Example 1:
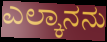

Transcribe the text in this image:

ಎಲ್ಕಾನನು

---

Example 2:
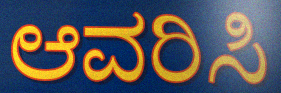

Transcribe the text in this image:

ಆವರಿಸಿ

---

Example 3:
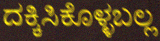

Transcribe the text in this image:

ದಕ್ಕಿಸಿಕೊಳ್ಳಬಲ್ಲ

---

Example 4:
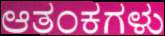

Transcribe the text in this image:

ಆತಂಕಗಳು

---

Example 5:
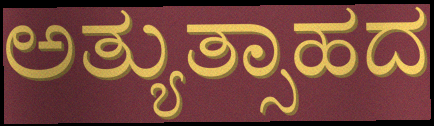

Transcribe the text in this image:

ಅತ್ಯುತ್ಸಾಹದ